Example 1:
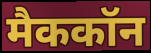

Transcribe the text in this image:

मैककॉन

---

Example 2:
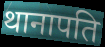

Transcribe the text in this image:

थानापति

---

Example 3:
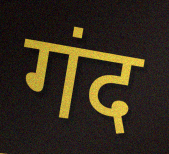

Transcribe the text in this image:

गंद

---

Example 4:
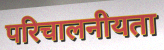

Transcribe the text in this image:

परिचालनीयता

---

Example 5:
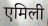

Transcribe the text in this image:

एमिली